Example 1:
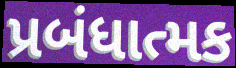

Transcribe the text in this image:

પ્રબંધાત્મક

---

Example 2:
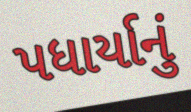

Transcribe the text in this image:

પધાર્યાનું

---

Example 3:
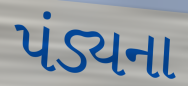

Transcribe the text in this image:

પંડ્યના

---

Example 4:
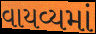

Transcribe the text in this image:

વાયવ્યમાં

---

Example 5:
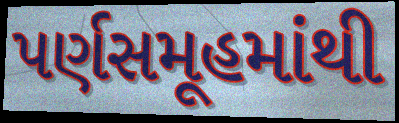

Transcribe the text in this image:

પર્ણસમૂહમાંથી